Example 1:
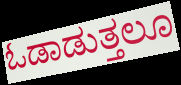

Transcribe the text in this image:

ಓಡಾಡುತ್ತಲೂ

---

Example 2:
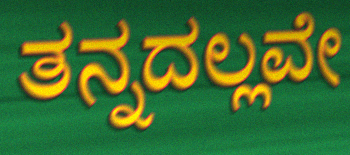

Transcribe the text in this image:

ತನ್ನದಲ್ಲವೇ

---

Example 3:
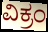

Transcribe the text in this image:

ವಿಕ್ರಂ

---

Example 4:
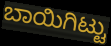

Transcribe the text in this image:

ಬಾಯಿಗಿಟ್ಟು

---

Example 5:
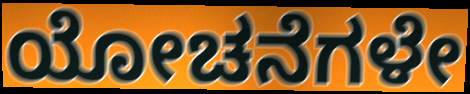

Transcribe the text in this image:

ಯೋಚನೆಗಳೇ